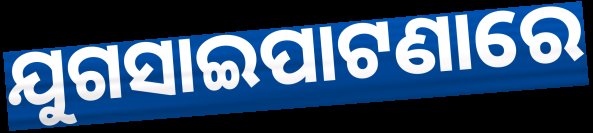
ଯୁଗସାଇପାଟଣାରେ